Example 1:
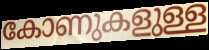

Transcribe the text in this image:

കോണുകളുള്ള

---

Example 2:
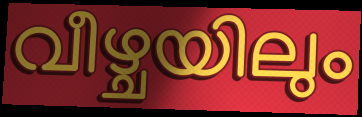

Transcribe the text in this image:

വീഴ്ചയിലും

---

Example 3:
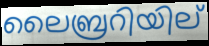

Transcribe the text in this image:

ലൈബ്രറിയില്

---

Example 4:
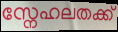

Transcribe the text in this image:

സ്നേഹലതക്ക്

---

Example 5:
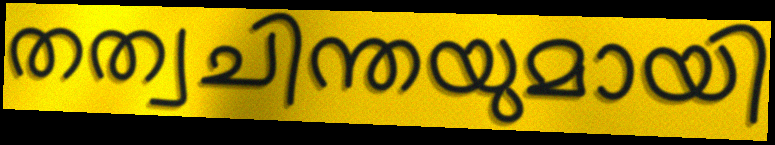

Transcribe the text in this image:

തത്വചിന്തയുമായി